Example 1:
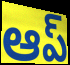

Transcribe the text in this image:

ఆప్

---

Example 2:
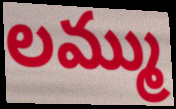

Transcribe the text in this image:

లమ్ము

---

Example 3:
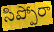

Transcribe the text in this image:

సిప్పోరా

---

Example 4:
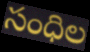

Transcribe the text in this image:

సంధిల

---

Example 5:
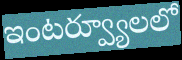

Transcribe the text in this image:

ఇంటర్వ్యూలలో